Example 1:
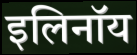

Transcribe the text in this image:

इलिनॉय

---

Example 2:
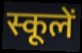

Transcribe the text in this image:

स्कूलें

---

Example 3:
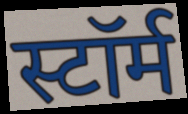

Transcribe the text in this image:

स्टॉर्म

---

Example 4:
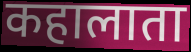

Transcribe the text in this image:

कहालाता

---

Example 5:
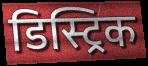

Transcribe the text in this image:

डिस्ट्रिक